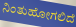
ನಿಂತುಹೋಗಲಿದೆ